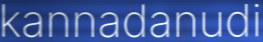
kannadanudi